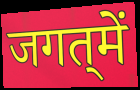
जगत्‌में